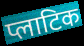
प्लाटिक